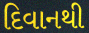
દિવાનથી